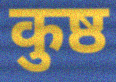
कुष्ठ